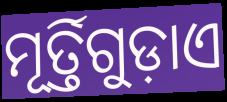
ମୂର୍ତ୍ତିଗୁଡ଼ାଏ